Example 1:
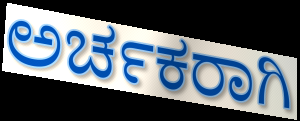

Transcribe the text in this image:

ಅರ್ಚಕರಾಗಿ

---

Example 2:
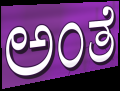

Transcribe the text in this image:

ಅಂತೆ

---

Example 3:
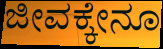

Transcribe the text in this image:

ಜೀವಕ್ಕೇನೂ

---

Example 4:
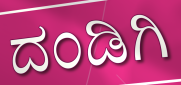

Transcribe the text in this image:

ದಂಡಿಗಿ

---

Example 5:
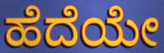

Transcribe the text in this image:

ಹೆದೆಯೇ